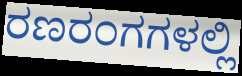
ರಣರಂಗಗಳಲ್ಲಿ